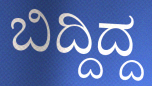
ಬಿದ್ದಿದ್ದ